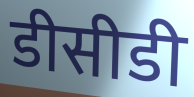
डीसीडी